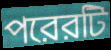
পরেরটি